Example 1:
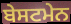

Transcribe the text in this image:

ਬੇਸਟਮੇਨ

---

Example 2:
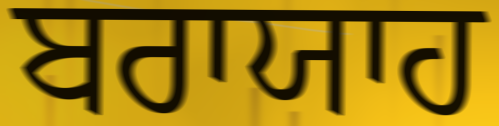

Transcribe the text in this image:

ਬਰਾਯਾਹ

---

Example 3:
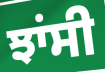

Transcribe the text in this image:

ਝਾਂਸੀ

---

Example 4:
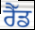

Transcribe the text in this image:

ਰੈੱਡ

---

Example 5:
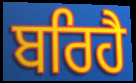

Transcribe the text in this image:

ਬਰਿਹੈ